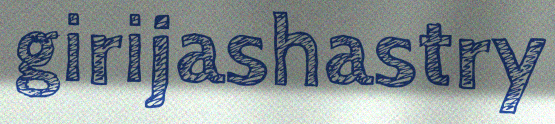
girijashastry